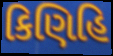
કિણિહિ